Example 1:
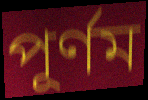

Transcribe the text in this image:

পূর্ণম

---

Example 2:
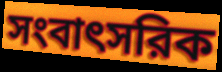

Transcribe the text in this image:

সংবাৎসরিক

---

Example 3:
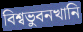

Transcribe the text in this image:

বিশ্বভুবনখানি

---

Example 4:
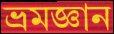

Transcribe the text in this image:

ভ্রমজ্ঞান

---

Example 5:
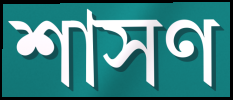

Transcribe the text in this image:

শাসণ